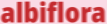
albiflora